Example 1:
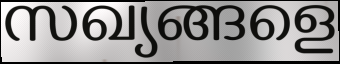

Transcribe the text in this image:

സഖ്യങ്ങളെ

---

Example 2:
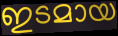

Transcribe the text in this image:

ഇടമായ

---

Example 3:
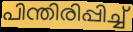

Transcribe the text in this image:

പിന്തിരിപ്പിച്ച്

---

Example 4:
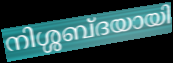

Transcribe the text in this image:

നിശ്ശബ്ദയായി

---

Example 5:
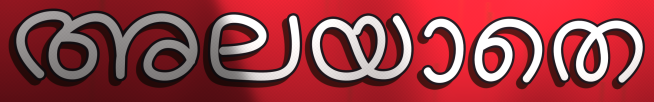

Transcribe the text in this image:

അലയാതെ